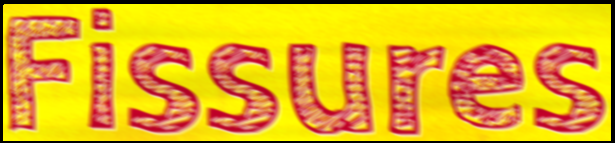
Fissures